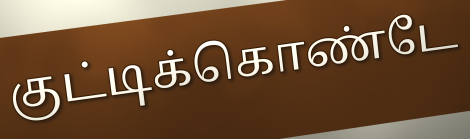
குட்டிக்கொண்டே